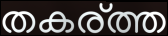
തകര്ത്ത